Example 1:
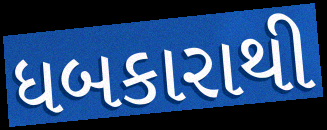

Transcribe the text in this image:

ધબકારાથી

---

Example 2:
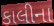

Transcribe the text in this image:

કાલીના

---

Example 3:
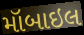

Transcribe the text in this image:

મૉબાઇલ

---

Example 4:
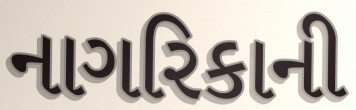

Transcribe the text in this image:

નાગરિકાની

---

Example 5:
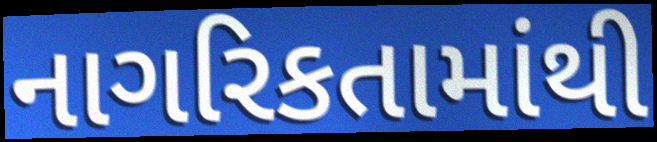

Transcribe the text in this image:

નાગરિકતામાંથી